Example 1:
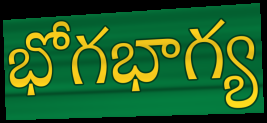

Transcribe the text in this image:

భోగభాగ్య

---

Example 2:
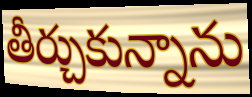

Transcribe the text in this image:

తీర్చుకున్నాను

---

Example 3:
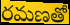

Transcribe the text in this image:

రమణతో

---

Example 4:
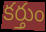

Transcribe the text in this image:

కర్తుం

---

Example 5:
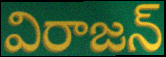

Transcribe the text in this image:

విరాజన్